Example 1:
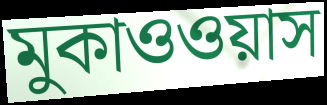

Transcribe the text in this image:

মুকাওওয়াস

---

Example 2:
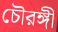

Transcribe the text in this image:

চৌরঙ্গী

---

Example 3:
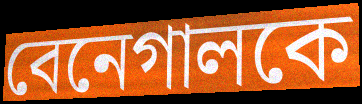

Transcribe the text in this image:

বেনেগালকে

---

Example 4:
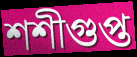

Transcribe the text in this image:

শশীগুপ্ত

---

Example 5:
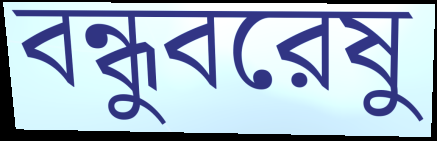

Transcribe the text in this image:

বন্ধুবরেষু